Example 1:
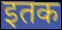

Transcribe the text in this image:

इतक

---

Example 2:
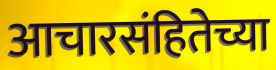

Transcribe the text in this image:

आचारसंहितेच्या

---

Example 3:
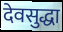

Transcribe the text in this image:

देवसुद्धा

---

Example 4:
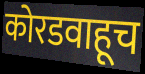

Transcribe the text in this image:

कोरडवाहूच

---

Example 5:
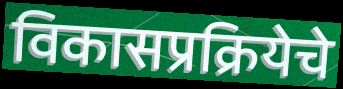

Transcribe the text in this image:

विकासप्रक्रियेचे